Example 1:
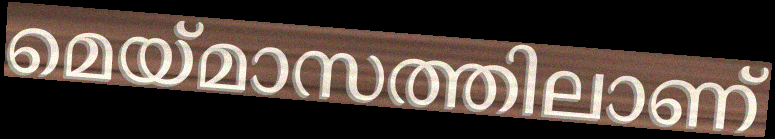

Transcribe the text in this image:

മെയ്മാസത്തിലാണ്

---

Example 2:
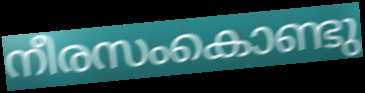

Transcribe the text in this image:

നീരസംകൊണ്ടു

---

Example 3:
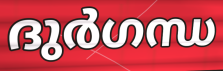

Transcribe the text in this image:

ദുർഗന്ധ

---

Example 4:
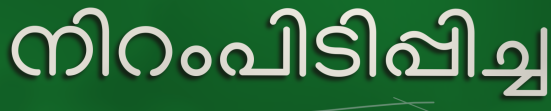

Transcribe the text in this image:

നിറംപിടിപ്പിച്ച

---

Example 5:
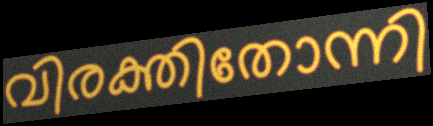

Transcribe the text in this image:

വിരക്തിതോന്നി